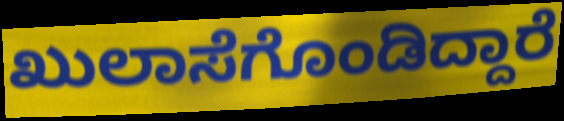
ಖುಲಾಸೆಗೊಂಡಿದ್ದಾರೆ